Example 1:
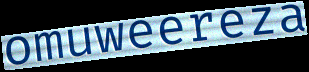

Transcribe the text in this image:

omuweereza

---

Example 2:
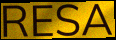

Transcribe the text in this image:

RESA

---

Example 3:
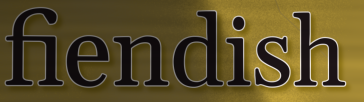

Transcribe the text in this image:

fiendish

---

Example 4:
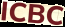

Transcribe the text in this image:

ICBC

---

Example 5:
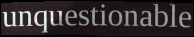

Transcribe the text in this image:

unquestionable